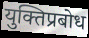
युक्तिप्रबोध